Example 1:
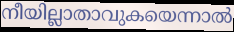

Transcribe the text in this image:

നീയില്ലാതാവുകയെന്നാൽ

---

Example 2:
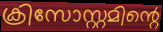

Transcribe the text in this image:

ക്രിസോസ്റ്റമിന്റെ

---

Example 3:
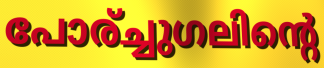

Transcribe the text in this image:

പോര്ച്ചുഗലിന്റെ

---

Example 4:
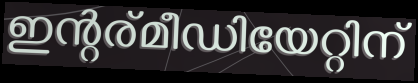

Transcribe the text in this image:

ഇന്റര്മീഡിയേറ്റിന്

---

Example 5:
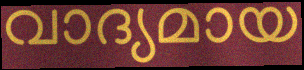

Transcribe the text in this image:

വാദ്യമായ